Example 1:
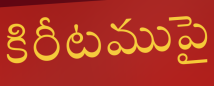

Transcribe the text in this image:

కిరీటముపై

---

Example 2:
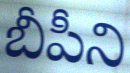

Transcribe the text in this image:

బీపీని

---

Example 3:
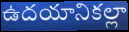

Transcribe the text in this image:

ఉదయానికల్లా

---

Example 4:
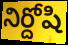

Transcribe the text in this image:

నిర్దోషి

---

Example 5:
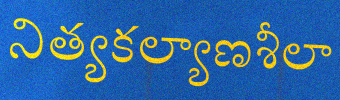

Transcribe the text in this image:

నిత్యకల్యాణశీలా